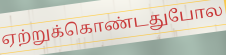
ஏற்றுக்கொண்டதுபோல